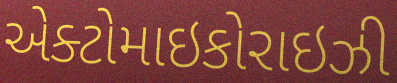
એક્ટોમાઇકોરાઇઝી